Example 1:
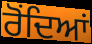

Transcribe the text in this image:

ਰੋਂਦਿਆਂ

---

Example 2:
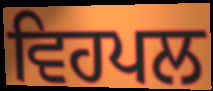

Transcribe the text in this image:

ਵਿਹਪਲ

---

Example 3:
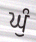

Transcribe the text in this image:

ਘੁੰ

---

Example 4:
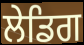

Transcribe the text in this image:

ਲੇਡਿਗ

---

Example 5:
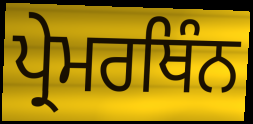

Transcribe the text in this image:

ਪ੍ਰੇਮਰਥਿੰਨ